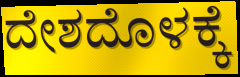
ದೇಶದೊಳಕ್ಕೆ